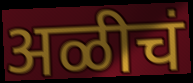
अळीचं